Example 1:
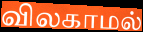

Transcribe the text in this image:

விலகாமல்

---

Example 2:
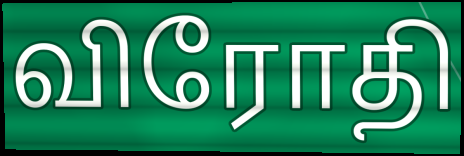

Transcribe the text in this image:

விரோதி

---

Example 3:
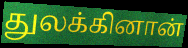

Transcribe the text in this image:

துலக்கினான்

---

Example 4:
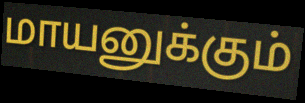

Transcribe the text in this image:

மாயனுக்கும்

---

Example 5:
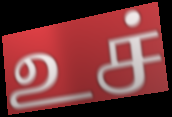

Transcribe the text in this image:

உச்